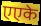
एएके